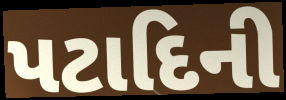
પટાદિની